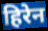
हिरेन